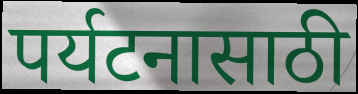
पर्यटनासाठी